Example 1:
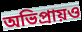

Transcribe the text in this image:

অভিপ্রায়ও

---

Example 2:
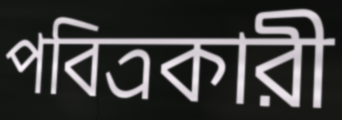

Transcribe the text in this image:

পবিত্রকারী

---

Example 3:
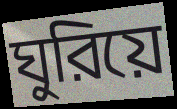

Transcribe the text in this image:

ঘুরিয়ে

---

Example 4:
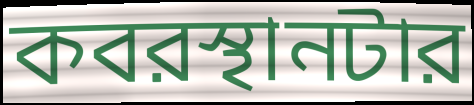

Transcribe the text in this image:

কবরস্থানটার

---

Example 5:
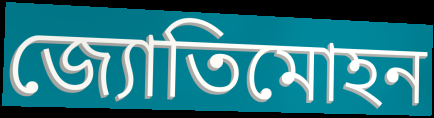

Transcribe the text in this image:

জ্যোতিমোহন